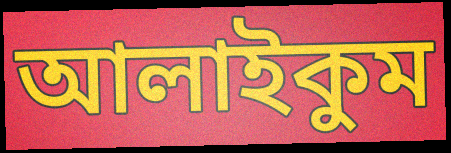
আলাইকুম